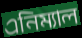
এনিম্যাল